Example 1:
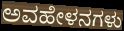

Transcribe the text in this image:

ಅವಹೇಳನಗಳು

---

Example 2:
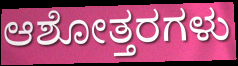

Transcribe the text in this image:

ಆಶೋತ್ತರಗಳು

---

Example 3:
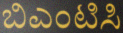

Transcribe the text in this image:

ಬಿಎಂಟಿಸಿ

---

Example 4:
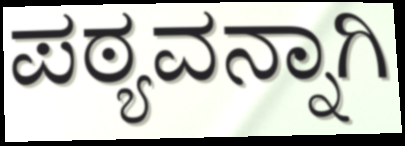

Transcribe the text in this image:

ಪಠ್ಯವನ್ನಾಗಿ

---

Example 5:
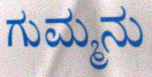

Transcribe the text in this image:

ಗುಮ್ಮನು